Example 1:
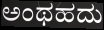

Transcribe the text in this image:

ಅಂಥಹದು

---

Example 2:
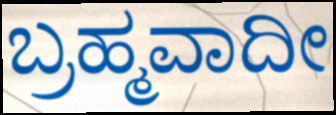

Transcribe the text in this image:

ಬ್ರಹ್ಮವಾದೀ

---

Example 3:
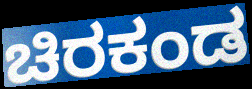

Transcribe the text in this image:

ಚಿರಕಂಡ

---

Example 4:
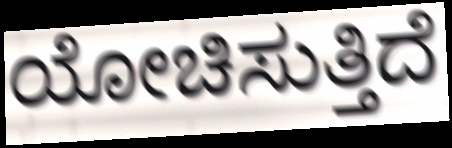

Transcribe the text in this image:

ಯೋಚಿಸುತ್ತಿದೆ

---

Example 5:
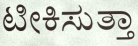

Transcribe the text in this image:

ಟೀಕಿಸುತ್ತಾ